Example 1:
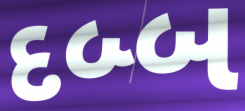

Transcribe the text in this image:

દબ્બ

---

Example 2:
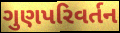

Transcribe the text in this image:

ગુણપરિવર્તન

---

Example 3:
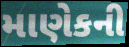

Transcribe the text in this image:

માણેકની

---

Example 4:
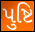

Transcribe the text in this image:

પુષ્ટિ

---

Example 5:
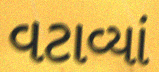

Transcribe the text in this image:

વટાવ્યાં